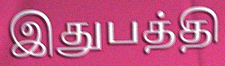
இதுபத்தி